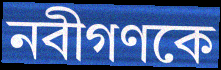
নবীগণকে